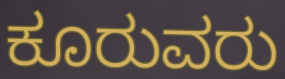
ಕೂರುವರು